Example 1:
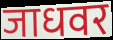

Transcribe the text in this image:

जाधवर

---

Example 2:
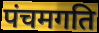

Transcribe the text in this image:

पंचमगति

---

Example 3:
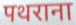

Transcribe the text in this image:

पथराना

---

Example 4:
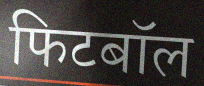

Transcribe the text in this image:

फिटबॉल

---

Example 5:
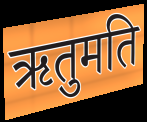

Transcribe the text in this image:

ऋतुमति